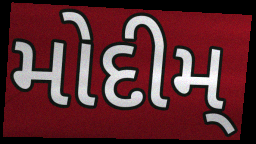
મોદીમ્